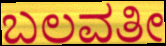
ಬಲವತೀ